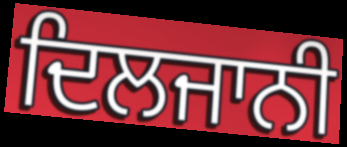
ਦਿਲਜਾਨੀ